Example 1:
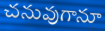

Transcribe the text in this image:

చనువుగానూ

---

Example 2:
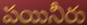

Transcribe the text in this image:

పయినీరు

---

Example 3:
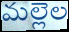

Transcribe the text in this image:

మల్లెల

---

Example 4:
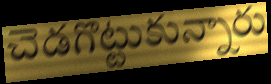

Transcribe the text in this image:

చెడగొట్టుకున్నారు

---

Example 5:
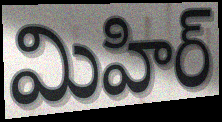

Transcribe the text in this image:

మిహిర్